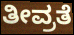
ತೀವ್ರತೆ